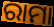
ରାମା